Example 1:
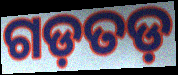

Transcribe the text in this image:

ଗଡ଼ତଡ଼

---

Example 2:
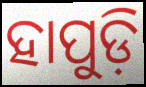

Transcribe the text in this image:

ହାପୁଡ଼ି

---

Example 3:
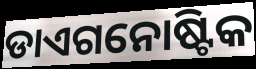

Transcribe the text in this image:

ଡାଏଗନୋଷ୍ଟିକ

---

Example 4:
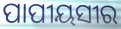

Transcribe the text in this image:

ପାପୀୟସୀର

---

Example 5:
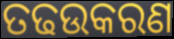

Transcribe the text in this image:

ତଢଉକରଣ